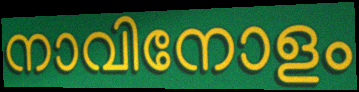
നാവിനോളം